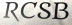
RCSB